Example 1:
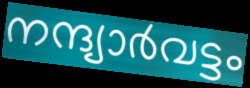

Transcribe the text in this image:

നന്ദ്യാർവട്ടം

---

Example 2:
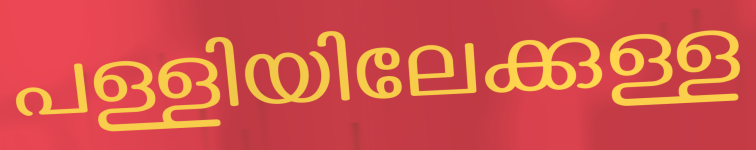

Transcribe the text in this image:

പള്ളിയിലേക്കുള്ള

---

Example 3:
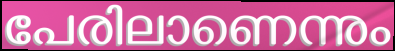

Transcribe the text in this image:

പേരിലാണെന്നും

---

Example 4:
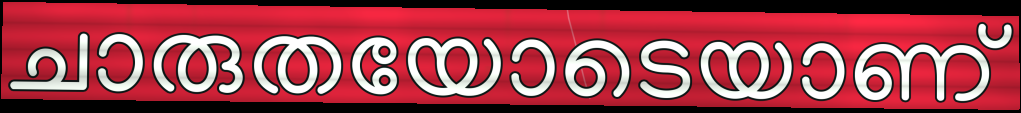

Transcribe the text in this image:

ചാരുതയോടെയാണ്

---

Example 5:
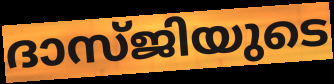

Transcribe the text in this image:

ദാസ്ജിയുടെ